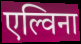
एल्विना